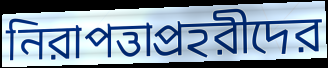
নিরাপত্তাপ্রহরীদের